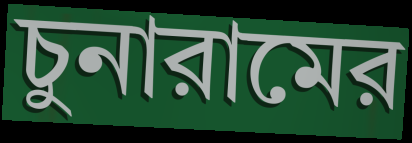
চুনারামের